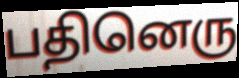
பதினெரு